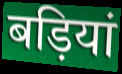
बड़ियां